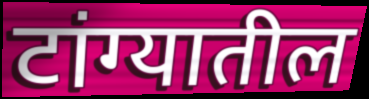
टांग्यातील